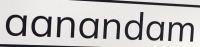
aanandam